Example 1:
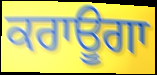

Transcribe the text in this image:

ਕਰਾਊਗਾ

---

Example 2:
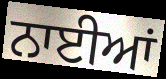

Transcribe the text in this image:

ਨਾਈਆਂ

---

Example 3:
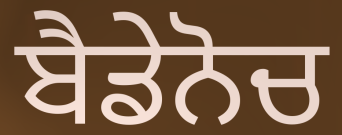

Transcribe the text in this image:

ਬੈਡੇਨੋਚ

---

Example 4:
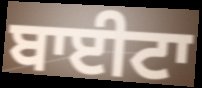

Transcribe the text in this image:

ਬਾਈਟਾ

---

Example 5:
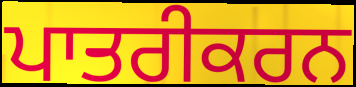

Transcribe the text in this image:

ਪਾਤਰੀਕਰਨ